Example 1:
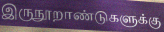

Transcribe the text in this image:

இருநூறாண்டுகளுக்கு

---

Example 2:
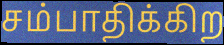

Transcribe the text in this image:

சம்பாதிக்கிற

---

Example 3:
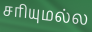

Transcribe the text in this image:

சரியுமல்ல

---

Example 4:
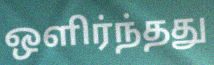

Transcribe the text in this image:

ஒளிர்ந்தது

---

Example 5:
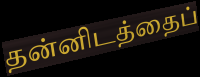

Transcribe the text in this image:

தன்னிடத்தைப்